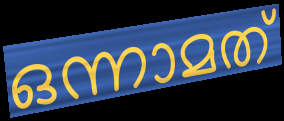
ഒന്നാമത്